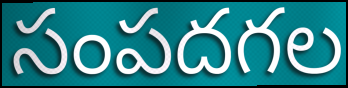
సంపదగల